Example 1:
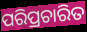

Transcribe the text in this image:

ପରିପ୍ରଚାରିତ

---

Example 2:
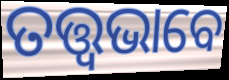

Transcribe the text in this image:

ତତ୍ତ୍ଵଭାବେ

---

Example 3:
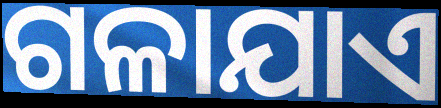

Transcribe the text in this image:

ଗଳାଯାଏ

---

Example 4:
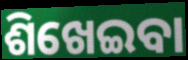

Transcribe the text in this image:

ଶିଖେଇବା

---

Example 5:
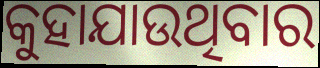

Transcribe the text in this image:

କୁହାଯାଉଥିବାର